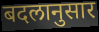
बदलानुसार